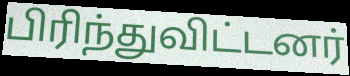
பிரிந்துவிட்டனர்